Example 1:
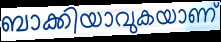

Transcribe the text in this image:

ബാക്കിയാവുകയാണ്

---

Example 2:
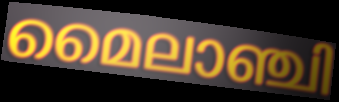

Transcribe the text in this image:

മൈലാഞ്ചി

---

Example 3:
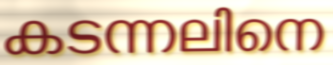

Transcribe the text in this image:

കടന്നലിനെ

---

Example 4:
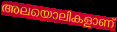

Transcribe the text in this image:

അലയൊലികളാണ്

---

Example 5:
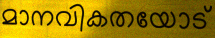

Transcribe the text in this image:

മാനവികതയോട്